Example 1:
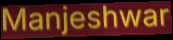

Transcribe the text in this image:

Manjeshwar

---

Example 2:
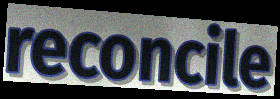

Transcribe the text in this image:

reconcile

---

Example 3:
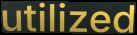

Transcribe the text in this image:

utilized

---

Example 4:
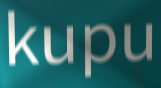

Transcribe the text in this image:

kupu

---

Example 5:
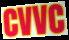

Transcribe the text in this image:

CVVC